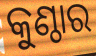
କୁଣ୍ଠାର